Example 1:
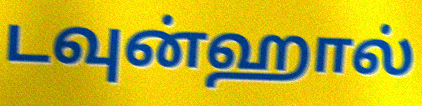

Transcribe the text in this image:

டவுன்ஹால்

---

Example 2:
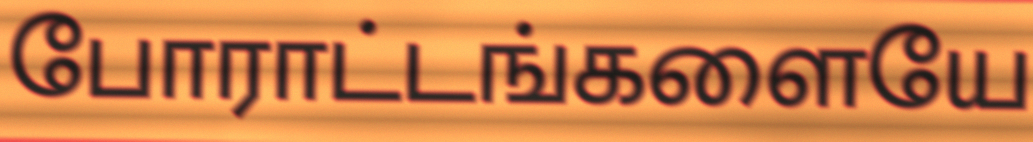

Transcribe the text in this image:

போராட்டங்களையே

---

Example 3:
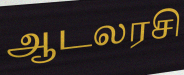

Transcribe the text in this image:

ஆடலரசி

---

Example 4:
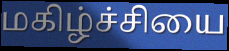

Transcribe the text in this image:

மகிழ்ச்சியை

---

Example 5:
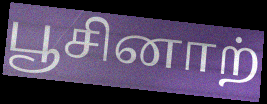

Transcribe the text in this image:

பூசினாற்